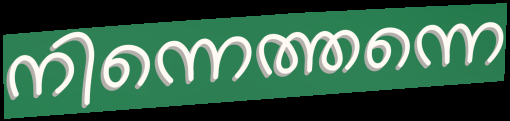
നിന്നെത്തന്നെ